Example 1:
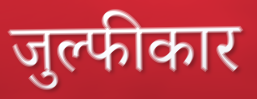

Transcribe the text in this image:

जुल्फीकार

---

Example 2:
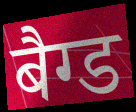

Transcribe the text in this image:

बैग्ड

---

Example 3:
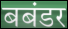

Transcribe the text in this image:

बबंडर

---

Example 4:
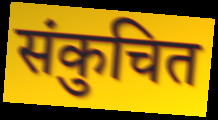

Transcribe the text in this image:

संकुचित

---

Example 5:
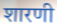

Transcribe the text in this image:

शारणी